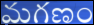
మగణం